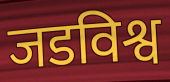
जडविश्व